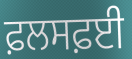
ਫ਼ਲਸਫ਼ਈ